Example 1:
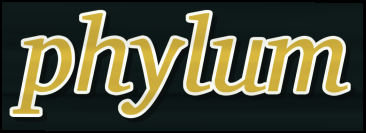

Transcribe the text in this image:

phylum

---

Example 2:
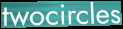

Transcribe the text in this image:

twocircles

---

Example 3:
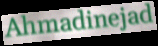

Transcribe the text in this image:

Ahmadinejad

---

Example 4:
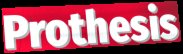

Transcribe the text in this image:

Prothesis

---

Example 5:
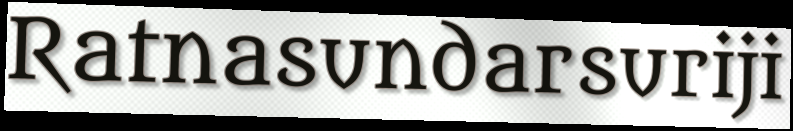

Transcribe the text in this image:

Ratnasundarsuriji